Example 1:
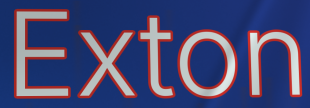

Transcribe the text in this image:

Exton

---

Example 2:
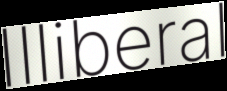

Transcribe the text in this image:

Illiberal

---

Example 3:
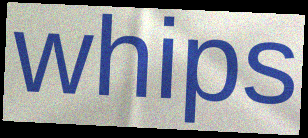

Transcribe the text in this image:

whips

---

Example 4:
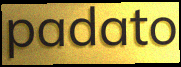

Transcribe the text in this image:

padato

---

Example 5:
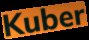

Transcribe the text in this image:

Kuber